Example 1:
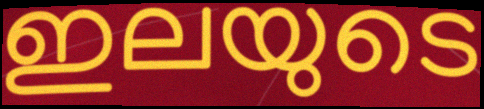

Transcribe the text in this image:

ഇലയുടെ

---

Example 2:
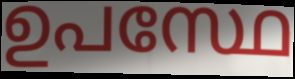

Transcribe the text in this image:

ഉപസ്ഥേ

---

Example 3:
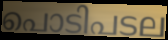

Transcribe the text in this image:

പൊടിപടല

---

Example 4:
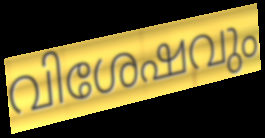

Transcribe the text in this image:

വിശേഷവും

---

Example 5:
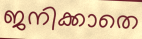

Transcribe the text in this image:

ജനിക്കാതെ